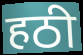
हठी